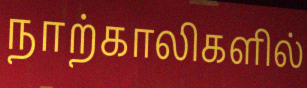
நாற்காலிகளில்